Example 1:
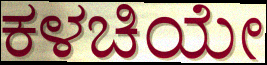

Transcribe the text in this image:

ಕಳಚಿಯೇ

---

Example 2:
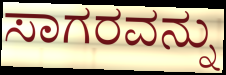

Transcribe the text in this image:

ಸಾಗರವನ್ನು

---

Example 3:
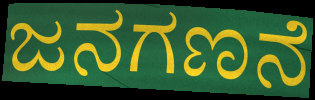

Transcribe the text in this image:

ಜನಗಣನೆ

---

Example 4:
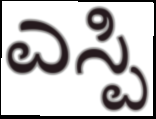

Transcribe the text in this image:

ಎಸ್ಪಿ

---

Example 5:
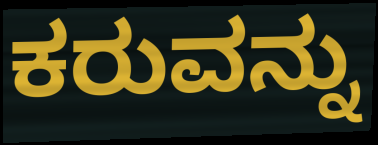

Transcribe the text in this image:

ಕರುವನ್ನು